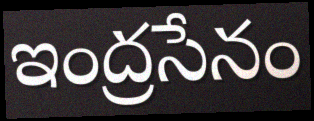
ఇంద్రసేనం